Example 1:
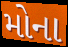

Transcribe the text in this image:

મોના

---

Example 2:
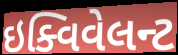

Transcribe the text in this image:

ઇક્વિવેલન્ટ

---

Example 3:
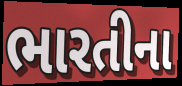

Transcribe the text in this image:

ભારતીના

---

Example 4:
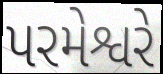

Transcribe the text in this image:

પરમેશ્વરે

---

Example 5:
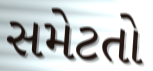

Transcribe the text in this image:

સમેટતો